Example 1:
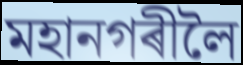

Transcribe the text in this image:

মহানগৰীলৈ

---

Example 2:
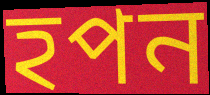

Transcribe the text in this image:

হপন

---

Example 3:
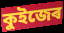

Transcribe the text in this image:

কুইজেৰ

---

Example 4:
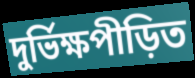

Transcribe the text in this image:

দুৰ্ভিক্ষপীড়িত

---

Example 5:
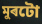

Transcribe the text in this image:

মুৰটো